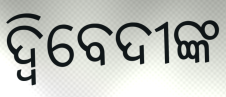
ଦ୍ବିବେଦୀଙ୍କ